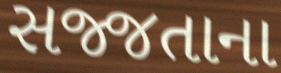
સજ્જતાના